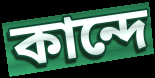
কান্দে